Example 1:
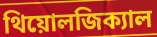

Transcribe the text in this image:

থিয়োলজিক্যাল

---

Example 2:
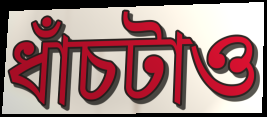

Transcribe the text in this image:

ধাঁচটাও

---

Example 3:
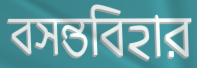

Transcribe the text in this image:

বসন্তবিহার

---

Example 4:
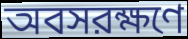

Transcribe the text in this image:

অবসরক্ষণে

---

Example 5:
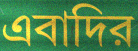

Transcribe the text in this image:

এবাদির